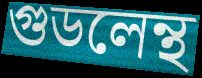
গুডলেন্থ